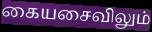
கையசைவிலும்